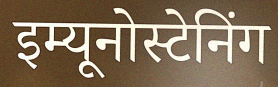
इम्यूनोस्टेनिंग